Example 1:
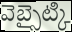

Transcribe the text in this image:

వెబ్సైట్కి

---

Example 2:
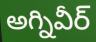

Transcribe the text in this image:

అగ్నివీర్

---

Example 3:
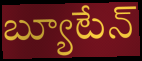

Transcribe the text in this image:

బ్యూటేన్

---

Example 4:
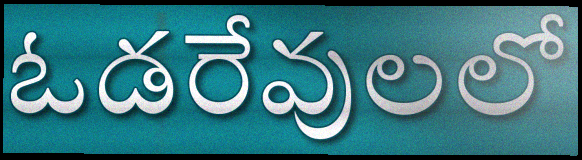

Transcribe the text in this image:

ఓడరేవులలో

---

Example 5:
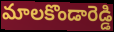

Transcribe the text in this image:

మాలకొండారెడ్డి